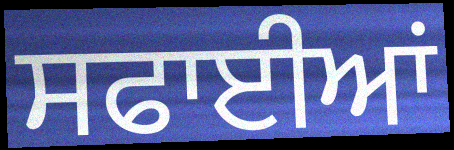
ਸਫਾਈਆਂ